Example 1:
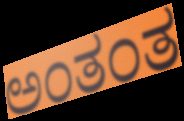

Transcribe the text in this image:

ಅಂತಂತ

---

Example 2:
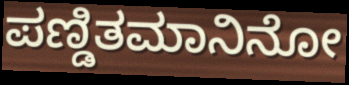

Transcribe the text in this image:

ಪಣ್ಡಿತಮಾನಿನೋ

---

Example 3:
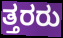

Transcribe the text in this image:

ತ್ತರರು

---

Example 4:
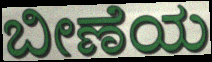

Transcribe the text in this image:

ಬೀಣೆಯ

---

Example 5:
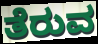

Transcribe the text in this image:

ತೆರುವ